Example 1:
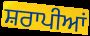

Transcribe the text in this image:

ਸ਼ਰਾਪੀਆਂ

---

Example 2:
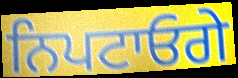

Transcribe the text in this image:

ਨਿਪਟਾਓਗੇ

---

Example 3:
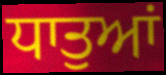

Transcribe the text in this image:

ਧਾਤੁਆਂ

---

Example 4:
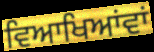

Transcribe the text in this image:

ਵਿਆਖਿਆਂਵਾਂ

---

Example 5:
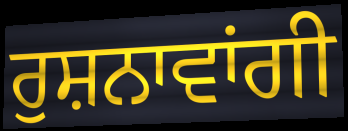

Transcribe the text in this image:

ਰੁਸ਼ਨਾਵਾਂਗੀ